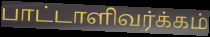
பாட்டாளிவர்க்கம்